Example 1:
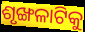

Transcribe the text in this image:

ଶୃଙ୍ଖଳାଟିକୁ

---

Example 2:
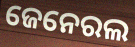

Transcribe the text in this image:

ଜେନେରଲ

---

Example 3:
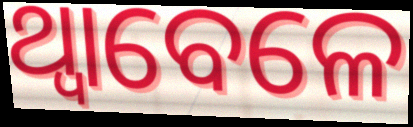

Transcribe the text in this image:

ଥ୍ବାବେଳେ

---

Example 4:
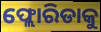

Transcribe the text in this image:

ଫ୍ଲୋରିଡାକୁ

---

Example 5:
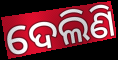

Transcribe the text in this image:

ଦେଲିଣି